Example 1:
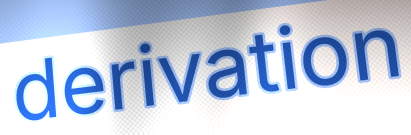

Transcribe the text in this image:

derivation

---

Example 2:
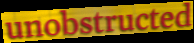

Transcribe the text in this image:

unobstructed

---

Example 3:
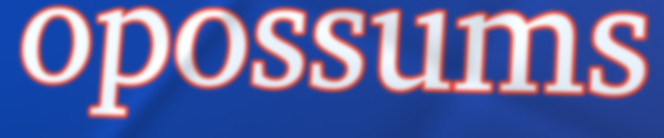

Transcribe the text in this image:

opossums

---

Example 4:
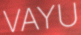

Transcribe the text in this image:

VAYU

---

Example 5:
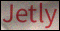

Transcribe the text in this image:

Jetly